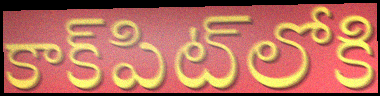
కాక్‌పిట్‌లోకి